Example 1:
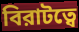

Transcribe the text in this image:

বিরাটত্বে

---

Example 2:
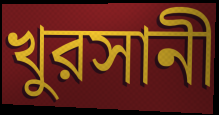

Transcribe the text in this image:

খুরসানী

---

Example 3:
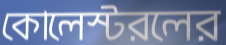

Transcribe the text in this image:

কোলেস্টরলের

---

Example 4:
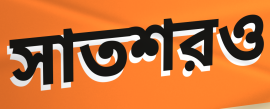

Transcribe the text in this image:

সাতশরও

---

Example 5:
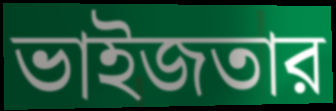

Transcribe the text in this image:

ভাইজতার